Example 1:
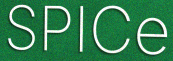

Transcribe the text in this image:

SPICe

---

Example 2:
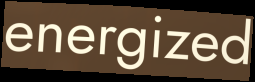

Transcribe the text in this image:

energized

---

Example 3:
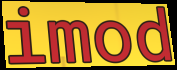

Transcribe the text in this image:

imod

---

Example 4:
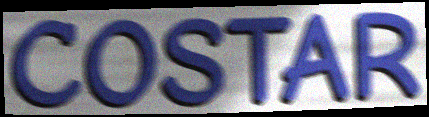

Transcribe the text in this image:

COSTAR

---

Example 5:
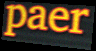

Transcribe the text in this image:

paer